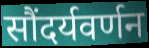
सौंदर्यवर्णन